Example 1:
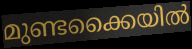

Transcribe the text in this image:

മുണ്ടക്കൈയിൽ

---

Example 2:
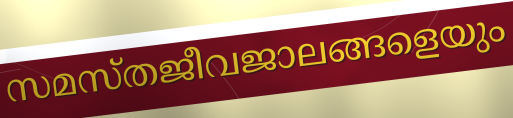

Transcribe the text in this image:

സമസ്തജീവജാലങ്ങളെയും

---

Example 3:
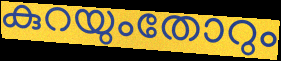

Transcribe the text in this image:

കുറയുംതോറും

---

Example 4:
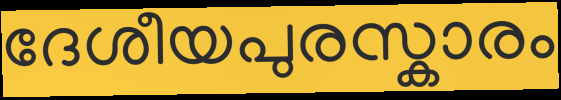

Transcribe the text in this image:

ദേശീയപുരസ്കാരം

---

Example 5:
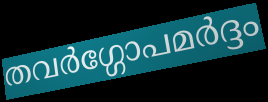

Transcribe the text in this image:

തവർഗ്ഗോപമർദ്ദം